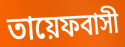
তায়েফবাসী